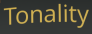
Tonality